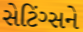
સેટિંગ્સને